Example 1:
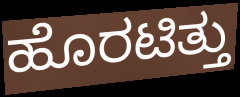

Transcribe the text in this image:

ಹೊರಟಿತ್ತು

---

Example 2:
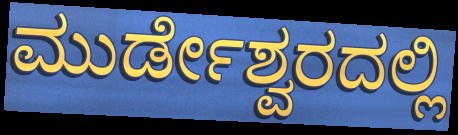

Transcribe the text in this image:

ಮುರ್ಡೇಶ್ವರದಲ್ಲಿ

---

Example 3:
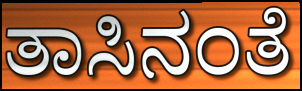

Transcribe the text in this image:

ತಾಸಿನಂತೆ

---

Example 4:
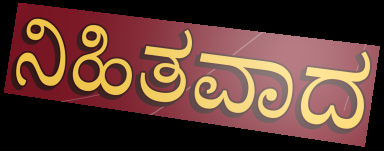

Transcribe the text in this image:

ನಿಹಿತವಾದ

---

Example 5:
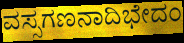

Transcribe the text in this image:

ವಸ್ಸಗಣನಾದಿಭೇದಂ